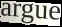
argue